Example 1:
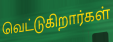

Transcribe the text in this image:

வெட்டுகிறார்கள்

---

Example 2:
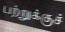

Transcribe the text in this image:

பற்றுக்குச்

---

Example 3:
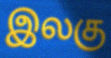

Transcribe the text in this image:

இலகு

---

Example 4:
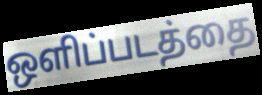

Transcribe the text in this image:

ஒளிப்படத்தை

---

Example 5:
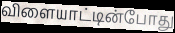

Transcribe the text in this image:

விளையாட்டின்போது